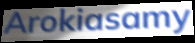
Arokiasamy